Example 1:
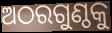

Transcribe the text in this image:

ଅଠରଗୁଣ୍ଠକୁ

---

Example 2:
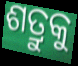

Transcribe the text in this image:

ଶତ୍ରୁକୁ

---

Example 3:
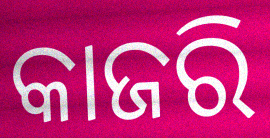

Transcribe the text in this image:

କାଜରି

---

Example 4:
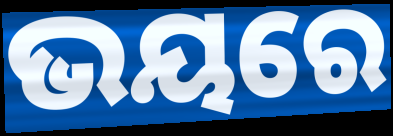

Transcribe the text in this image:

ଭୟରେ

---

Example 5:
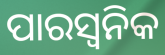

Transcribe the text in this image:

ପାରସ୍ୱନିକ